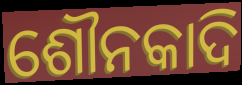
ଶୌନକାଦି